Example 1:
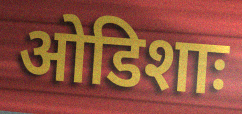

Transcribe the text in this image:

ओडिशाः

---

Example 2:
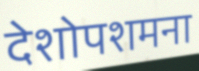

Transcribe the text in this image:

देशोपशमना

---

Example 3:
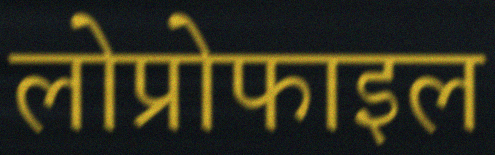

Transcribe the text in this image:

लोप्रोफाइल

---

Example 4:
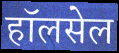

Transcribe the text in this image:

हॉलसेल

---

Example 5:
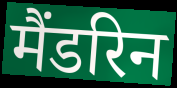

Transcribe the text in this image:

मैंडरिन